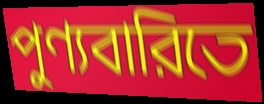
পুণ্যবারিতে